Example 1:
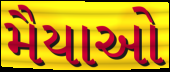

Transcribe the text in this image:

મૈયાઓ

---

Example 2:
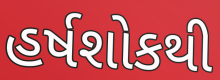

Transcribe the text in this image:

હર્ષશોકથી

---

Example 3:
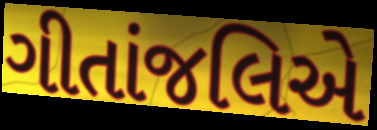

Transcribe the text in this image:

ગીતાંજલિએ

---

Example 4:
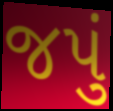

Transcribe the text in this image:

જપું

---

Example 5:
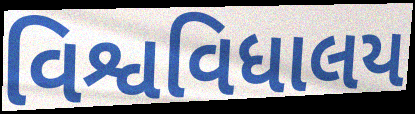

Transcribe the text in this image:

વિશ્વવિધાલય